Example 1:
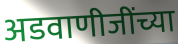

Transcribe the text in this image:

अडवाणीजींच्या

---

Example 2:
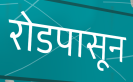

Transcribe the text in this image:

रोडपासून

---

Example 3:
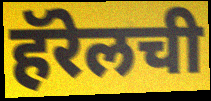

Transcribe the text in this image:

हॅरेलची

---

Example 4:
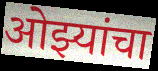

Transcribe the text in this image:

ओझ्यांचा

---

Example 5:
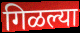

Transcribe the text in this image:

गिळल्या